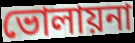
ভোলায়না